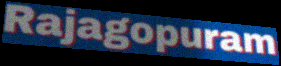
Rajagopuram